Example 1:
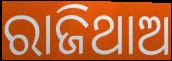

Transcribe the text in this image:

ରାଜିଥାଅ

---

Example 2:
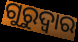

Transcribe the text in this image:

ଗୁରୁଦ୍ଵାର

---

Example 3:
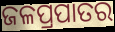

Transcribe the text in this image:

ଜଳପ୍ରପାତର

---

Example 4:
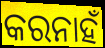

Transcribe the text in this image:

କରନାହଁ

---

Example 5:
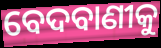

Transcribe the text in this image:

ବେଦବାଣୀକୁ